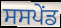
ਸਸਪੇੰਡ